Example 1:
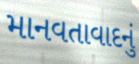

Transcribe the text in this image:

માનવતાવાદનું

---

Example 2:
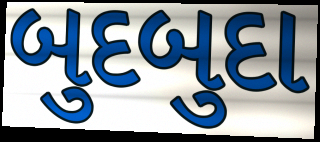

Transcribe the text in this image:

બુદબુદા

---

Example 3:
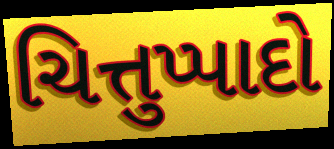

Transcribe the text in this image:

ચિત્તુપ્પાદો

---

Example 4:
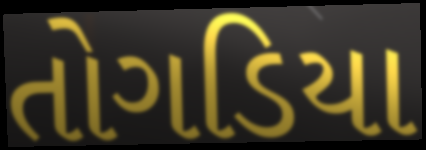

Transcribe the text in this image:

તોગડિયા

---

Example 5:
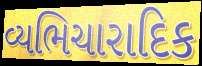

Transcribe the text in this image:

વ્યભિચારાદિક